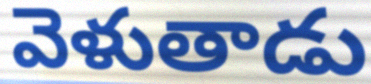
వెళుతాడు